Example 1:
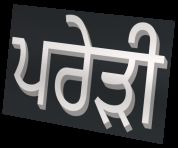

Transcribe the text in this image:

ਪਰੇੜੀ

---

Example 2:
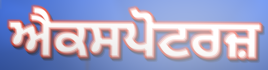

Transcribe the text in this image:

ਐਕਸਪੋਟਰਜ਼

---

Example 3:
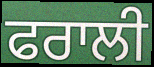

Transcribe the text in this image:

ਫਰਾਲੀ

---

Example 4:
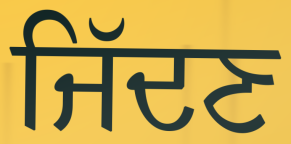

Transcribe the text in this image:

ਜਿੱਦਣ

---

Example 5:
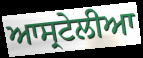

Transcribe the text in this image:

ਆਸ੍ਰਟੇਲੀਆ